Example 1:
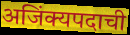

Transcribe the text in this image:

अजिंक्यपदाची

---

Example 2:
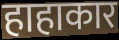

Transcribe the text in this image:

हाहाकार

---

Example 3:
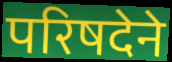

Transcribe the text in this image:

परिषदेने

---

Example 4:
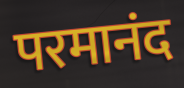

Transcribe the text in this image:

परमानंद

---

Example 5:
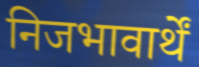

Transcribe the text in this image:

निजभावार्थें